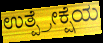
ಉತ್ಪ್ರೇಕ್ಷೆಯ